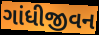
ગાંધીજીવન